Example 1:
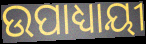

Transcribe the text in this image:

ଉପାଧ୍ୟାୟୀ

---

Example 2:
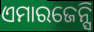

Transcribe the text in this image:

ଏମାରଜେନ୍ସି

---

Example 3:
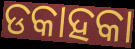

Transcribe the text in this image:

ଡକାହକା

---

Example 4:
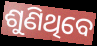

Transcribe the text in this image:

ଶୁଣିଥିବେ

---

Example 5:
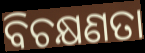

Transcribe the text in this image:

ବିଚକ୍ଷଣତା